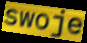
swoje